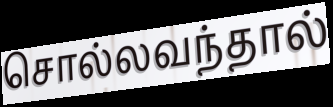
சொல்லவந்தால்